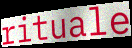
rituale